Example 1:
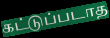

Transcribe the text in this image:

கட்டுப்படாத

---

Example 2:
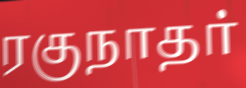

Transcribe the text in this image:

ரகுநாதர்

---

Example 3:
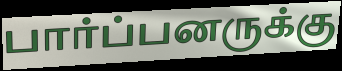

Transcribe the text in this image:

பார்ப்பனருக்கு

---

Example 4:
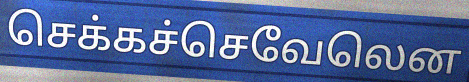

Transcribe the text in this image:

செக்கச்செவேலென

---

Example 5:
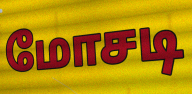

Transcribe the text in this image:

மோசடி